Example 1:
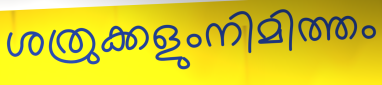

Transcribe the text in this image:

ശത്രുക്കളുംനിമിത്തം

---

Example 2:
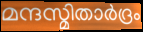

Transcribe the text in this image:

മന്ദസ്മിതാർദ്രം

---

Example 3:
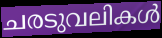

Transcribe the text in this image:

ചരടുവലികൾ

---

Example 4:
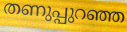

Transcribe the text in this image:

തണുപ്പുറഞ്ഞ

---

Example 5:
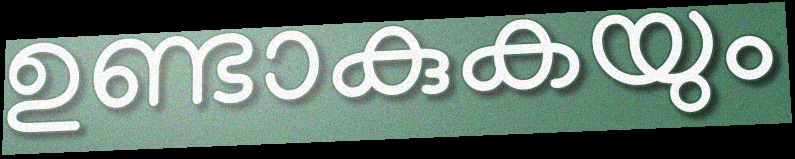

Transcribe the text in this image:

ഉണ്ടാകുകയും